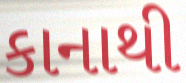
કાનાથી